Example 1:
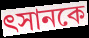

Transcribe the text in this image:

ৎসানকে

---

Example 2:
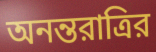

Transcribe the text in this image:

অনন্তরাত্রির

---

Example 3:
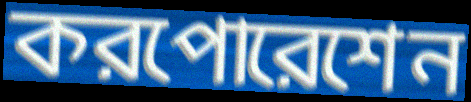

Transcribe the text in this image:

করপোরেশেন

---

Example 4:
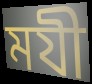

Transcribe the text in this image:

মযী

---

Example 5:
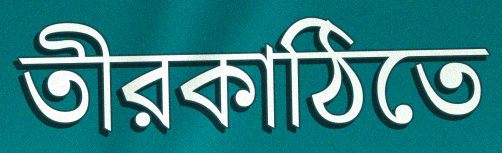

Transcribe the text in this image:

তীরকাঠিতে